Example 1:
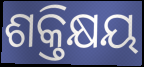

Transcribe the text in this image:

ଶକ୍ତିକ୍ଷୟ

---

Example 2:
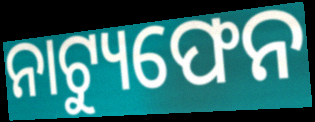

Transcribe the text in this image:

ନାଟ୍ୟୁଫେନ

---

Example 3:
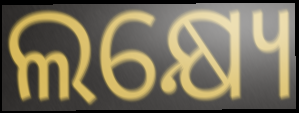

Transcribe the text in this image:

ଲକ୍ଷ୍ୟେ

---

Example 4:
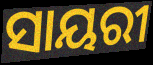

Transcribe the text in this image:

ସାୟରୀ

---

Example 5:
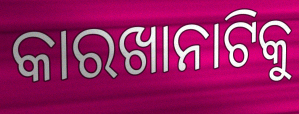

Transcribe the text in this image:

କାରଖାନାଟିକୁ